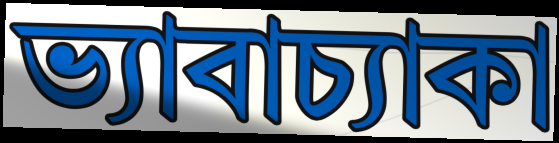
ভ্যাবাচ্যাকা